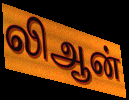
லிஆன்